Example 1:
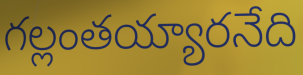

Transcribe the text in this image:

గల్లంతయ్యారనేది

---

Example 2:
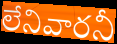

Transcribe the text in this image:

లేనివారనీ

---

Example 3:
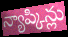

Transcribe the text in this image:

న్యాప్కిన్లు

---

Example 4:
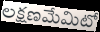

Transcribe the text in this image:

లక్షణమేమిటో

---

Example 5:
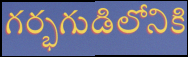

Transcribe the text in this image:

గర్భగుడిలోనికి